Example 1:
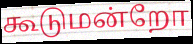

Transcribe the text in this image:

கூடுமன்றோ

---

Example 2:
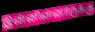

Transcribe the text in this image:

இன்னின்னாருக்கு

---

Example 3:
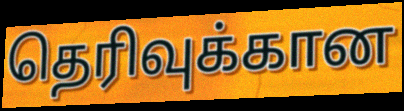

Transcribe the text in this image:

தெரிவுக்கான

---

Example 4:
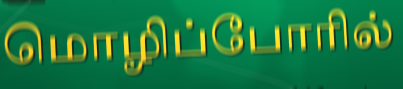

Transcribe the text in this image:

மொழிப்போரில்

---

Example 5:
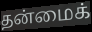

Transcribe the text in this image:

தன்மைக்